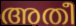
അതീ